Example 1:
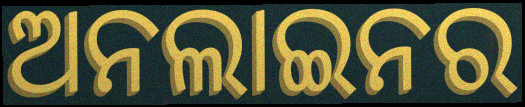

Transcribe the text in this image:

ଅନଲାଇନର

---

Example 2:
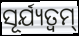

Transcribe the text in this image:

ସୂର୍ଯ୍ୟତ୍ୱମ୍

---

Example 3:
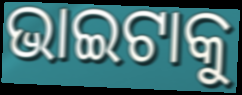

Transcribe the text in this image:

ଭାଇଟାକୁ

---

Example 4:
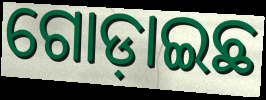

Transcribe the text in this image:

ଗୋଡ଼ାଇଛ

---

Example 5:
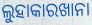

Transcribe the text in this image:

ଲୁହାକାରଖାନା